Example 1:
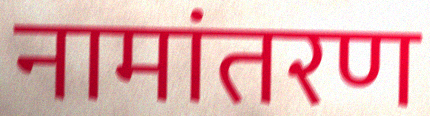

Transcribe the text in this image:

नामांतरण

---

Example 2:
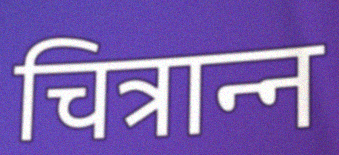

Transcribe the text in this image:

चित्रान्न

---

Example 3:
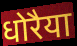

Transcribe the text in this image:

धोरैया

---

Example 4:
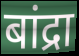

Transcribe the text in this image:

बांद्रा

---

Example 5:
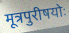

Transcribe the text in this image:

मूत्रपुरीषयोः